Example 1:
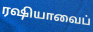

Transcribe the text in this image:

ரஷியாவைப்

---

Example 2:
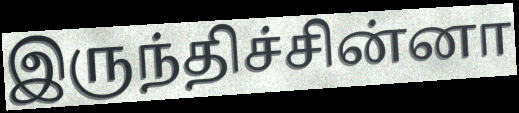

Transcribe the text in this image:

இருந்திச்சின்னா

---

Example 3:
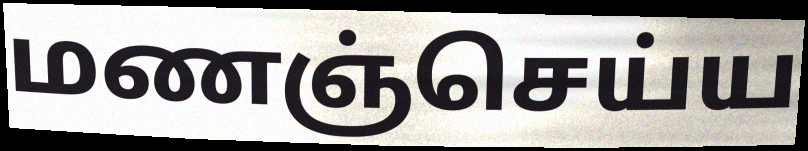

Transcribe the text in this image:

மணஞ்செய்ய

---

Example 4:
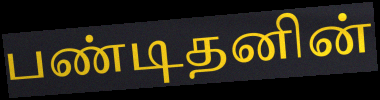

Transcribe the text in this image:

பண்டிதனின்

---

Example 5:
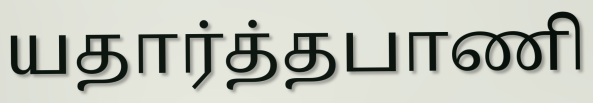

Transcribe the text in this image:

யதார்த்தபாணி